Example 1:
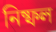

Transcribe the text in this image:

নিষ্ফল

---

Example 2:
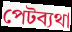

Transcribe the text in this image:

পেটব্যথা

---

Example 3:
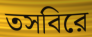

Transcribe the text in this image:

তসবিরে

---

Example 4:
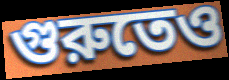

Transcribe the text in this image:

গুরুতেও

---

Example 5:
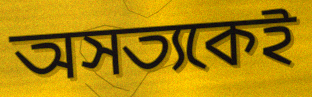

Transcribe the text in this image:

অসত্যকেই